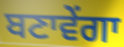
ਬਣਾਵੇਂਗਾ